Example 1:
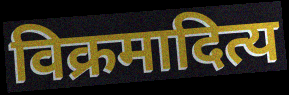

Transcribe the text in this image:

विक्रमादित्य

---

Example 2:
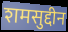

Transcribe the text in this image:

शमसुद्दीन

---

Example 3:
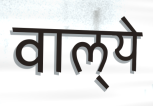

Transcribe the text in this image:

वाल्ये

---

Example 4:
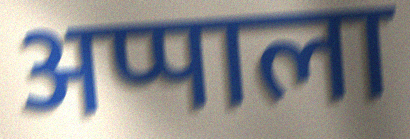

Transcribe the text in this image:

अप्पाला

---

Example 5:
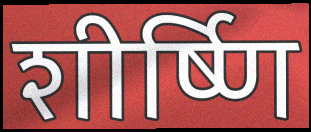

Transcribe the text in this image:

शीर्ष्णि